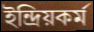
ইন্দ্রিয়কর্ম